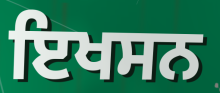
ਇਖਸਨ